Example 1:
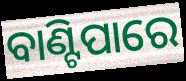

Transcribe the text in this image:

ବାଣ୍ଟିପାରେ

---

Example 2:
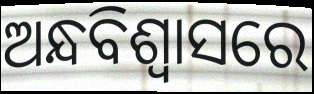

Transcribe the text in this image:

ଅନ୍ଧବିଶ୍ବାସରେ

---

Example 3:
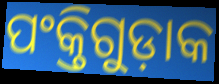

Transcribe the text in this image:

ପଂକ୍ତିଗୁଡ଼ାକ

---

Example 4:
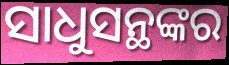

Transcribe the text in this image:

ସାଧୁସନ୍ଥଙ୍କର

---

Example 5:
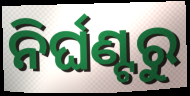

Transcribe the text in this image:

ନିର୍ଘଣ୍ଟରୁ